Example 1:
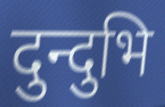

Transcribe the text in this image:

दुन्दुभि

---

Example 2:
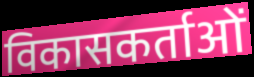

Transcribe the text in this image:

विकासकर्ताओं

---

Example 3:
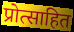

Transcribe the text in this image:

प्रोत्साहित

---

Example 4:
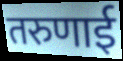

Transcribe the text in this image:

तरुणाई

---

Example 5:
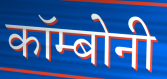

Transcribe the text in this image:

कॉम्बोनी